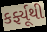
કર્ફ્યૂથી